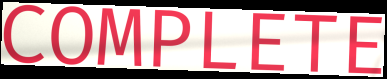
COMPLETE